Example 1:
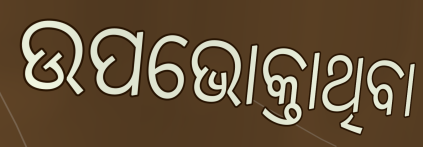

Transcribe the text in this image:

ଉପଭୋକ୍ତାଥିବା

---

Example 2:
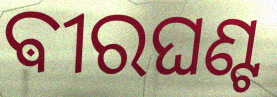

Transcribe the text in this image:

ଵୀରଘଣ୍ଟ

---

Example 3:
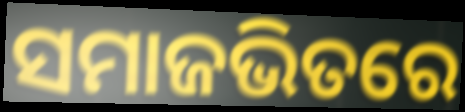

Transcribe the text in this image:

ସମାଜଭିତରେ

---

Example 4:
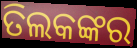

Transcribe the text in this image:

ତିଲକଙ୍କର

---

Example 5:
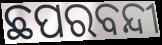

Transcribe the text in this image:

ଛପରବନ୍ଦୀ